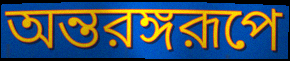
অন্তরঙ্গরূপে